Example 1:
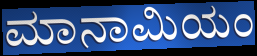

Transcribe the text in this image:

ಮಾನಾಮಿಯಂ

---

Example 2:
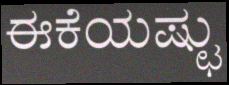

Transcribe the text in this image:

ಈಕೆಯಷ್ಟು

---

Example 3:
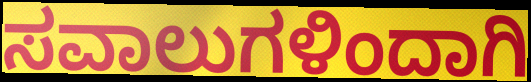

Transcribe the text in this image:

ಸವಾಲುಗಳಿಂದಾಗಿ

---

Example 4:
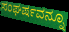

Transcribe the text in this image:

ಸಂಘರ್ಷವನ್ನೂ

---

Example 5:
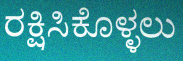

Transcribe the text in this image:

ರಕ್ಷಿಸಿಕೊಳ್ಳಲು